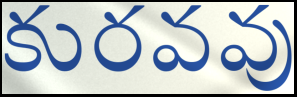
కురవవు